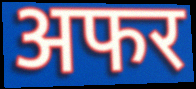
अफर